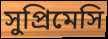
সুপ্রিমেসি